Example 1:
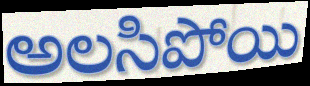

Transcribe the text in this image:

అలసిపోయి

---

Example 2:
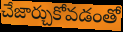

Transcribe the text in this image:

చేజార్చుకోవడంతో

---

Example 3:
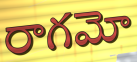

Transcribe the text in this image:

రాగమో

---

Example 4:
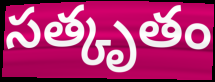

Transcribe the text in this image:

సత్కృతం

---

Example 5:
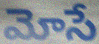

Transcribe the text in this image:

మోసే